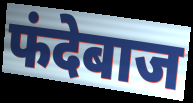
फंदेबाज